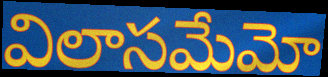
విలాసమేమో